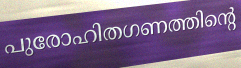
പുരോഹിതഗണത്തിന്റെ